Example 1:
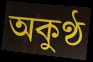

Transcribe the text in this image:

অকুণ্ঠ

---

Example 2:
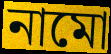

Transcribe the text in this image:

নামো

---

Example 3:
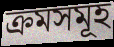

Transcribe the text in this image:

ক্ৰমসমূহ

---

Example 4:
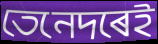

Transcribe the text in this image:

তেনেদৰেই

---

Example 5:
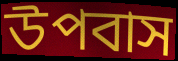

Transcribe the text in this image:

উপবাস